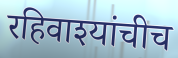
रहिवाश्यांचीच